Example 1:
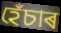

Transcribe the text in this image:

হেঁচাৰ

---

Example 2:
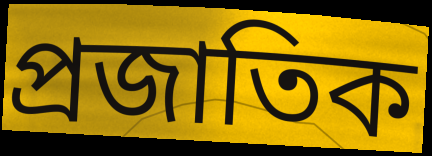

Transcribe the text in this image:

প্ৰজাতিক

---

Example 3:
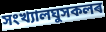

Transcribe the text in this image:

সংখ্যালঘুসকলৰ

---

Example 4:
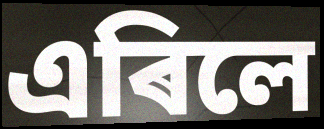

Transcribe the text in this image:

এৰিলে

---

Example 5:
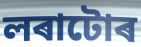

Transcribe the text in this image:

লৰাটোৰ